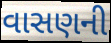
વાસણની